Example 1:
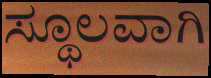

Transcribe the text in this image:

ಸ್ಥೂಲವಾಗಿ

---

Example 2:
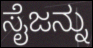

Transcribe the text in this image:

ಸೈಜನ್ನು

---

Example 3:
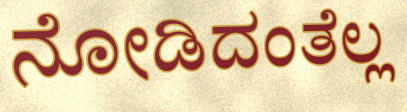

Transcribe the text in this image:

ನೋಡಿದಂತೆಲ್ಲ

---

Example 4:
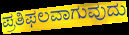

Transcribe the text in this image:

ಪ್ರತಿಫಲವಾಗುವುದು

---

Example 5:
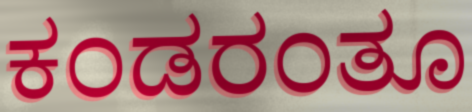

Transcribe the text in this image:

ಕಂಡರಂತೂ